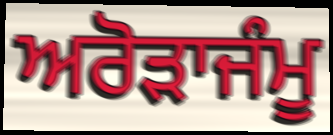
ਅਰੋੜਾਜੰਮੂ